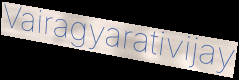
Vairagyarativijay